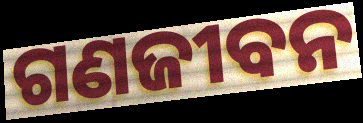
ଗଣଜୀବନ